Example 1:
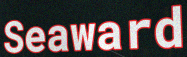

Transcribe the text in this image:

Seaward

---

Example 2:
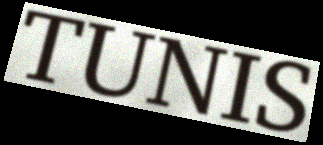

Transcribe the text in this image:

TUNIS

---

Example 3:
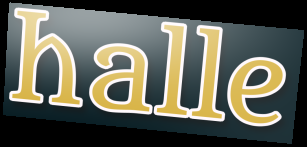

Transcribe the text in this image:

halle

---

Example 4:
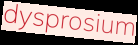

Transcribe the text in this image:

dysprosium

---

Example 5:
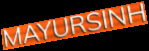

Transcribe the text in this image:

MAYURSINH